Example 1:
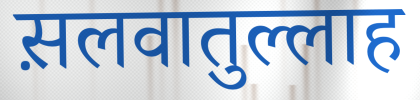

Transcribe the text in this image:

स़लवातुल्लाह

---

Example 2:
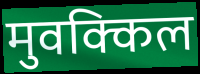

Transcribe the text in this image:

मुवक्किल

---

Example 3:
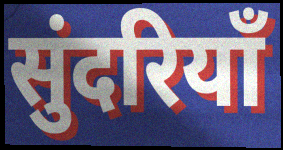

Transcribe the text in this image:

सुंदरियाँ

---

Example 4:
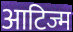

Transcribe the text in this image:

आटिज्म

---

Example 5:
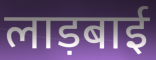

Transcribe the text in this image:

लाड़बाई